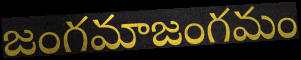
జంగమాజంగమం